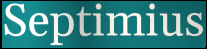
Septimius